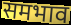
समभाव